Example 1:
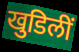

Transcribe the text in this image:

खुडिलीं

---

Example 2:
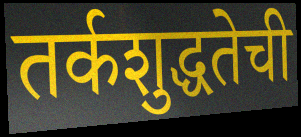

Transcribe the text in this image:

तर्कशुद्धतेची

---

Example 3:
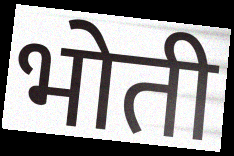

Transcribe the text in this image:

भोती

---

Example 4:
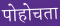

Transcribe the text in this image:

पोहोचता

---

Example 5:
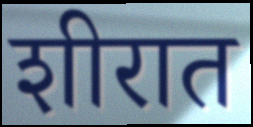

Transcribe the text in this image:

शीरात